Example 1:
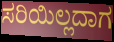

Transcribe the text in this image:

ಸರಿಯಿಲ್ಲದಾಗ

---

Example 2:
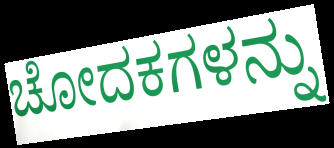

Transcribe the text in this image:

ಚೋದಕಗಳನ್ನು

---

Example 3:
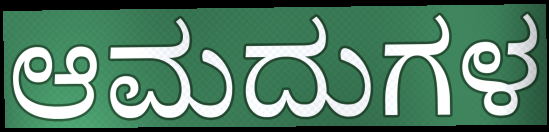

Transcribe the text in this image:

ಆಮದುಗಳ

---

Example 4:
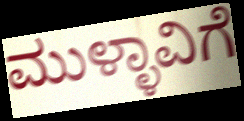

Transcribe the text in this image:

ಮುಳ್ಳಾವಿಗೆ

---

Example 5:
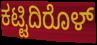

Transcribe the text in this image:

ಕಟ್ಟಿದಿರೊಳ್